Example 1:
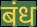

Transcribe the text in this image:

बंध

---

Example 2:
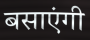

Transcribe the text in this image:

बसाएंगी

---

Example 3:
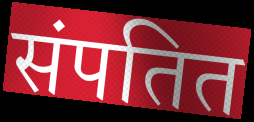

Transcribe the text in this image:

संपतित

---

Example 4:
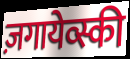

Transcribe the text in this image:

ज़गायेव्स्की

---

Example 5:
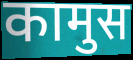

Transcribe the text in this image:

कामुस